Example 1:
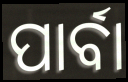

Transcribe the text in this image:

ପାର୍ବା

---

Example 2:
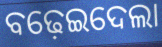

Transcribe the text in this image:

ବଢ଼େଇଦେଲା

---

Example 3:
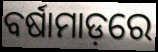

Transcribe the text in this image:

ବର୍ଷାମାଡ଼ରେ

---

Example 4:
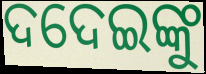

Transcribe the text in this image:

ଦଦେଇଙ୍କୁ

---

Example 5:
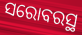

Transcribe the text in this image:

ସରୋବରସ୍ଥ